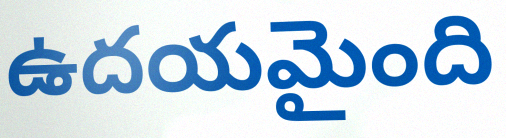
ఉదయమైంది